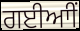
ਗਈਆੀਂ